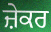
ਜ਼ੇਕਰ